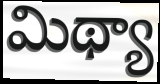
మిథ్యా